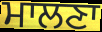
ਮਾਲਣਾ